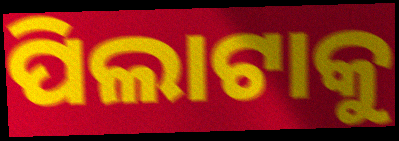
ପିଲାଟାକୁ